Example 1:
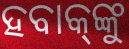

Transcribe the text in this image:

ହବାକ୍‌ଙ୍କୁ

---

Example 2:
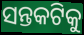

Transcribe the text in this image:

ସନ୍ତକଟିକୁ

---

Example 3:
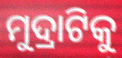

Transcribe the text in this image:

ମୁଦ୍ରାଟିକୁ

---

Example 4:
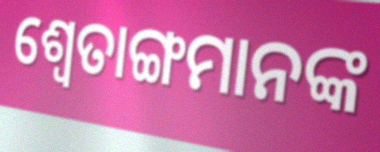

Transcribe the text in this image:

ଶ୍ଵେତାଙ୍ଗମାନଙ୍କ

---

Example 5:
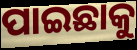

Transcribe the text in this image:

ପାଇଛାକୁ